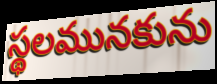
స్థలమునకును